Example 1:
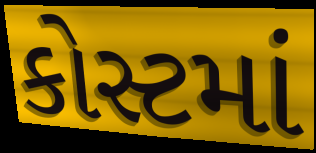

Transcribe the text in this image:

કોસ્ટમાં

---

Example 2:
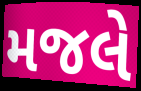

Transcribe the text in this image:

મજલે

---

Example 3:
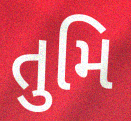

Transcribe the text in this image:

તુમિ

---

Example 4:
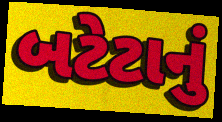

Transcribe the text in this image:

બટેટાનું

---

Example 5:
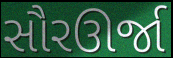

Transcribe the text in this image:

સૌરઊર્જા